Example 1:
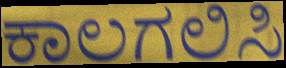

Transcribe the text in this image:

ಕಾಲಗಲಿಸಿ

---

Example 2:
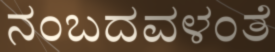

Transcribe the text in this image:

ನಂಬದವಳಂತೆ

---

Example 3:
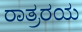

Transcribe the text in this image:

ರಾತ್ರರಯ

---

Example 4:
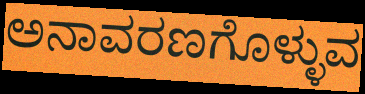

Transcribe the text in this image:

ಅನಾವರಣಗೊಳ್ಳುವ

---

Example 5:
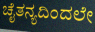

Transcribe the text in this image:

ಚೈತನ್ಯದಿಂದಲೇ